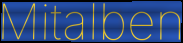
Mitalben